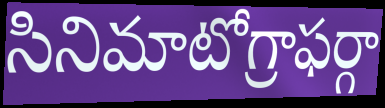
సినిమాటోగ్రాఫర్గా